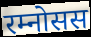
रम्नोसस